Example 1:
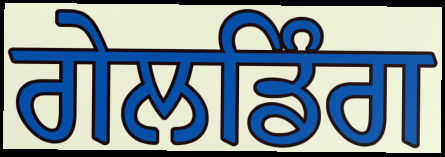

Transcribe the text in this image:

ਗੇਲਡਿੰਗ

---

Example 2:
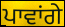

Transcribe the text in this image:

ਪਾਵਾਂਗੇ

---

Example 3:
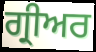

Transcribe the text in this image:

ਗ੍ਰੀਅਰ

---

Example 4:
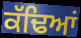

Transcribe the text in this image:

ਕੱਢਿਆਂ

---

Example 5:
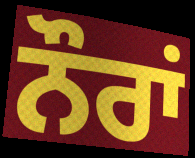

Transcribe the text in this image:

ਨੌਰਾਂ